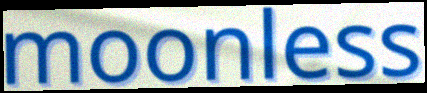
moonless